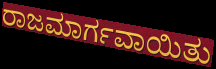
ರಾಜಮಾರ್ಗವಾಯಿತು